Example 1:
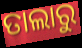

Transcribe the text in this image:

ତାଲାରୁ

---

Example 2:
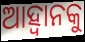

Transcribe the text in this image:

ଆହ୍ବାନକୁ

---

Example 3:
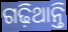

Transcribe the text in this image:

ଗଢ଼ିଥାନ୍ତି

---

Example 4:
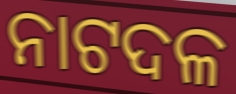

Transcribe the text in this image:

ନାଟଦଳ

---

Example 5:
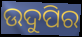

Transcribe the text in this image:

ଉଦୁପିର